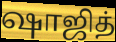
ஷாஜித்